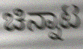
ಚಿನ್ನಾಟ